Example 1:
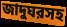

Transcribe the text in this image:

জাদুঘরসহ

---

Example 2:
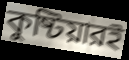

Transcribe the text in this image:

কুষ্টিয়ারই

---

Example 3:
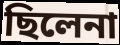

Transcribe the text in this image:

ছিলেনা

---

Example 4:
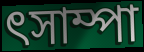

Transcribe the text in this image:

ৎসাম্পা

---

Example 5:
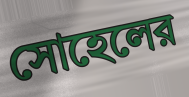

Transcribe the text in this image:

সোহেলের